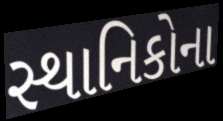
સ્થાનિકોના